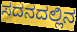
ಸದನದಲ್ಲಿನ